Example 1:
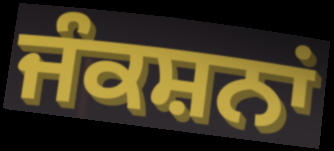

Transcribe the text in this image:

ਜੰਕਸ਼ਨਾਂ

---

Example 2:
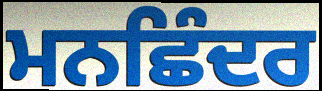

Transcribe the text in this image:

ਮਨਛਿੰਦਰ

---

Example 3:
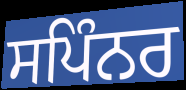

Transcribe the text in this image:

ਸਪਿੰਨਰ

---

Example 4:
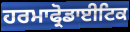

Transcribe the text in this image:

ਹਰਮਾਫ੍ਰੋਡਾਈਟਿਕ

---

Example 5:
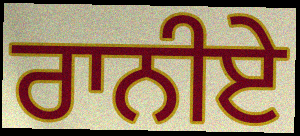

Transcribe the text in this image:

ਰਾਨੀਏ